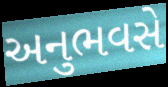
અનુભવસે